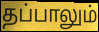
தப்பாலும்